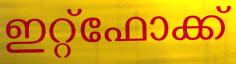
ഇറ്റ്ഫോക്ക്